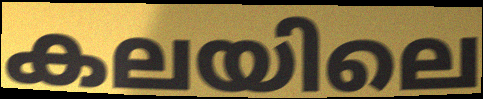
കലയിലെ